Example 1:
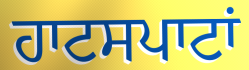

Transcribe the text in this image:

ਹਾਟਸਪਾਟਾਂ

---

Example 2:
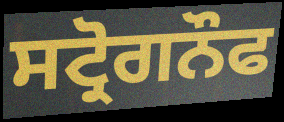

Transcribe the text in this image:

ਸਟ੍ਰੋਗਨੌਫ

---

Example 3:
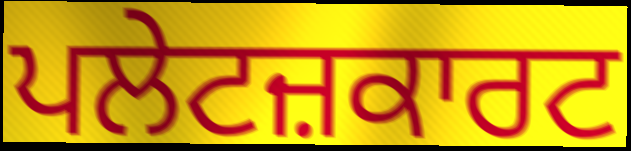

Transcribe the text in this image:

ਪਲੇਟਜ਼ਕਾਰਟ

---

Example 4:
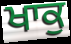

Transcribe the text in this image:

ਖਾਕੁ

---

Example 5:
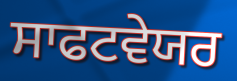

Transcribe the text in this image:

ਸਾਫਟਵੇਯਰ